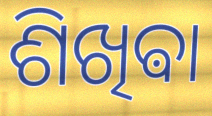
ଶିଖିଵା